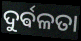
ଦୁର୍ଵଳତା